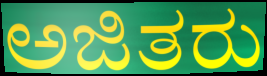
ಅಜಿತರು